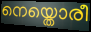
നെയ്തൊരീ